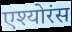
एश्योरंस